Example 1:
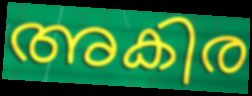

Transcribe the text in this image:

അകിര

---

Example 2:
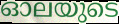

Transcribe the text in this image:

ഓലയുടെ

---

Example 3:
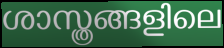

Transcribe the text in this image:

ശാസ്ത്രങ്ങളിലെ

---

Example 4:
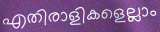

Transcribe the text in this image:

എതിരാളികളെല്ലാം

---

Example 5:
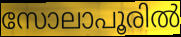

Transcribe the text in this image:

സോലാപൂരിൽ